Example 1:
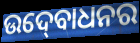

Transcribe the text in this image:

ଉଦ୍‍ବୋଧନର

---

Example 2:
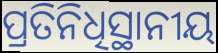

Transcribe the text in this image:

ପ୍ରତିନିଧିସ୍ଥାନୀୟ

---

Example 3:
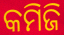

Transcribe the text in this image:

କମିଜି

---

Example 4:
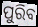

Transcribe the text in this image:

ପୁରିବ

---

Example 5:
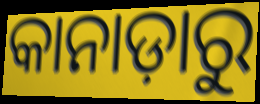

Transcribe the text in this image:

କାନାଡ଼ାରୁ